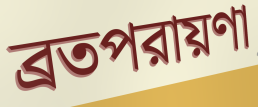
ব্রতপরায়ণা